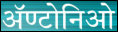
ॲण्टोनिओ